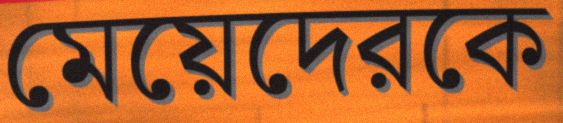
মেয়েদেরকে